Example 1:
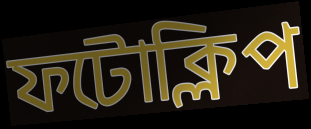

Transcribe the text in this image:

ফটোক্লিপ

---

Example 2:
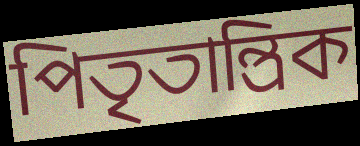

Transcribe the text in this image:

পিতৃতান্ত্ৰিক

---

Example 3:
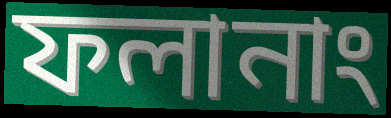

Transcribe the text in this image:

ফলানাং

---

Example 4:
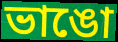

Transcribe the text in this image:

ভাঙো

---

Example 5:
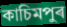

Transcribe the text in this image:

কাচিমপুৰ